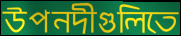
উপনদীগুলিতে